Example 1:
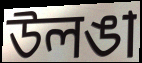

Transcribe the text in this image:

উলঙা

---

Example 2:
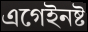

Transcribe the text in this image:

এগেইনষ্ট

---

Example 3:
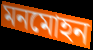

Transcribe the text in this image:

মনমোহন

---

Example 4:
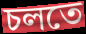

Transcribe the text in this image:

চলতে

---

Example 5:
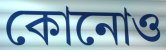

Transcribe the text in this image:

কোনোও